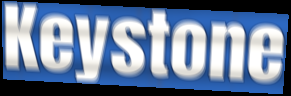
Keystone